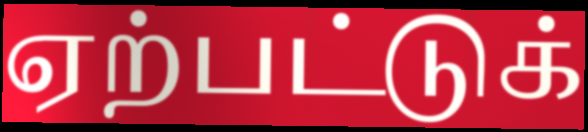
ஏற்பட்டுக்